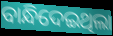
ବାନ୍ଧିଦେଇଥିଲା